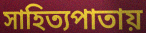
সাহিত্যপাতায়